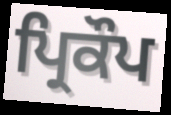
ਪ੍ਰਿਕੌਪ